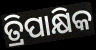
ତ୍ରିପାକ୍ଷିକ